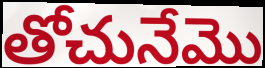
తోచునేమొ